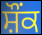
ਸ਼ੌਂਕ